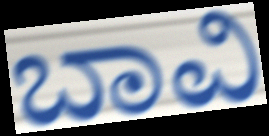
ಬಾವಿ